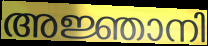
അജ്ഞാനി